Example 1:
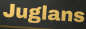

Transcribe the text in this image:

Juglans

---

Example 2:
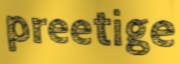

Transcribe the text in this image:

preetige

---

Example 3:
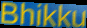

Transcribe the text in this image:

Bhikku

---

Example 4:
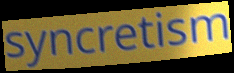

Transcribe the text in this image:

syncretism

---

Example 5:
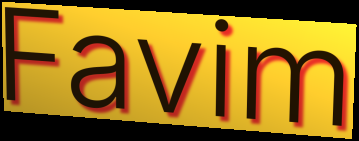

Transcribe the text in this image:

Favim